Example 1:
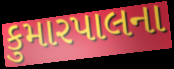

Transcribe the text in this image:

કુમારપાલના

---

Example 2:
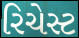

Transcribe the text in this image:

રિચેસ્ટ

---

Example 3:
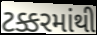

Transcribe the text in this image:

ટક્કરમાંથી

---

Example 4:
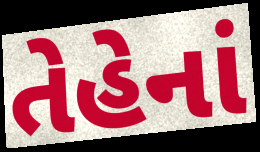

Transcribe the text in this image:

તેહેનાં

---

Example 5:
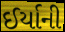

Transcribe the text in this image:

ઈર્યાની